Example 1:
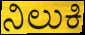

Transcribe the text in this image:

ನಿಲುಕಿ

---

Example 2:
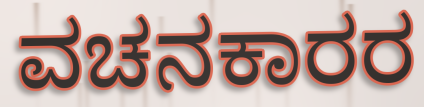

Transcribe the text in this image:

ವಚನಕಾರರ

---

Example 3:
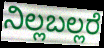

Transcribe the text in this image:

ನಿಲ್ಲಬಲ್ಲರೆ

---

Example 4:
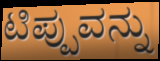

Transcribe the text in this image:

ಟಿಪ್ಪುವನ್ನು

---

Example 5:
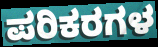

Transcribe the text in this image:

ಪರಿಕರಗಳ